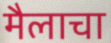
मैलाचा